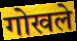
गोखले